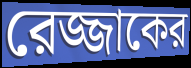
রেজ্জাকের